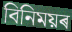
বিনিময়ৰ